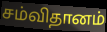
சம்விதானம்